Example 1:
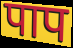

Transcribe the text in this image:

पाप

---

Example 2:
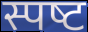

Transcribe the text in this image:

स्‍पष्‍ट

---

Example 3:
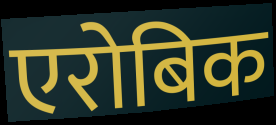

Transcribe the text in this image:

एरोबिक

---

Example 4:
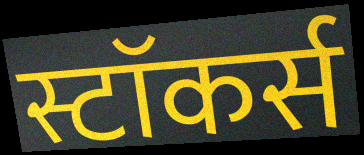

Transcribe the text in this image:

स्टॉकर्स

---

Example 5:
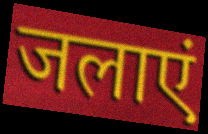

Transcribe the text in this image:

जलाएं